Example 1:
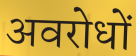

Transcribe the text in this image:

अवरोधों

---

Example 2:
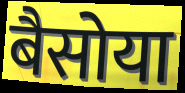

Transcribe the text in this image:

बैसोया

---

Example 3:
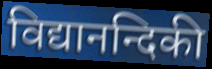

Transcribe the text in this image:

विद्यानन्दिकी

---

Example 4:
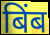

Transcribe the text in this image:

बिंब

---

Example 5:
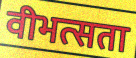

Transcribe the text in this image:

वीभत्सता